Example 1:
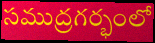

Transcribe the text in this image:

సముద్రగర్భంలో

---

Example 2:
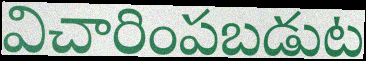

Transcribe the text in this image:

విచారింపబడుట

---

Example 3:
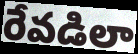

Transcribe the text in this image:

రేవడిలా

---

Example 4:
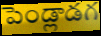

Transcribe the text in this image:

పెండ్లాడగ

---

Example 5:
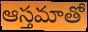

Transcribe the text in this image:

ఆస్తమాతో